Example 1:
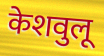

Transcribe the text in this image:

केशवुलू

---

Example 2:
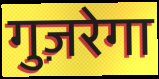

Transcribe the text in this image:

गुज़रेगा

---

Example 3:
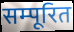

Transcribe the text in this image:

सम्पूरित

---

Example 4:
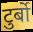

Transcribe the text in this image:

टुर्बो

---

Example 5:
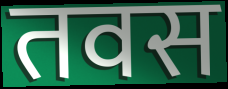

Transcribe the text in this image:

तवस